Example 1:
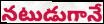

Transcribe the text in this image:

నటుడుగానే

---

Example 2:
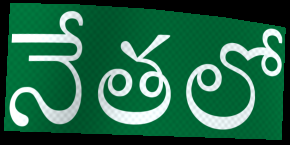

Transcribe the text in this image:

నేతలో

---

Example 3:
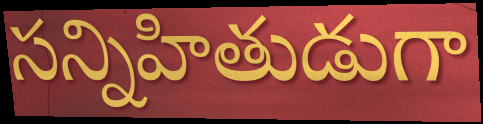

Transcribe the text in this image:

సన్నిహితుడుగా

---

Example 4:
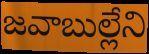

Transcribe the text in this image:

జవాబుల్లేని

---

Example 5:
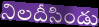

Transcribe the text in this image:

నిలదీసిండు